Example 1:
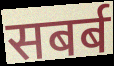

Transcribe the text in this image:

सबर्ब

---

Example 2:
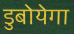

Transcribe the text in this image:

डुबोयेगा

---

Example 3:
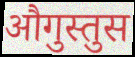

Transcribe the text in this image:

औगुस्तुस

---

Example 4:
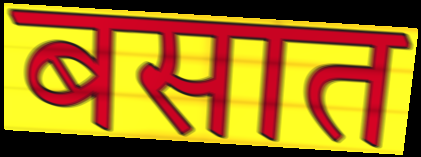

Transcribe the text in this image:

बसात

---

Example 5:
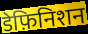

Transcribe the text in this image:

डेफ़िनिशन